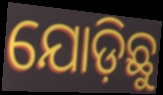
ଯୋଡ଼ିଛୁ